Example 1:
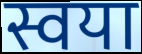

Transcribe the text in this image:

स्वया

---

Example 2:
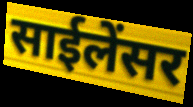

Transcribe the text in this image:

साईलेंसर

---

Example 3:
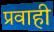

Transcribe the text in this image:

प्रवाही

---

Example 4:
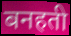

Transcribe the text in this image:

बनहती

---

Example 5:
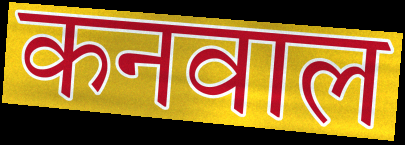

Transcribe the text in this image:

कनवाल